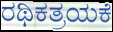
ರಥಿಕತ್ರಯಕೆ